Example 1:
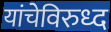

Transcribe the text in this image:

यांचेविरुध्द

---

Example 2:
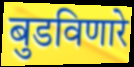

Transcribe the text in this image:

बुडविणारे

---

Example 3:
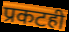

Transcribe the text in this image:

प्रकटही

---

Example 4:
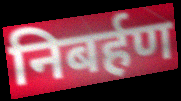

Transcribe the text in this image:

निबर्हण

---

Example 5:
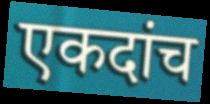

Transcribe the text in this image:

एकदांच